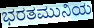
ಭರತಮುನಿಯ